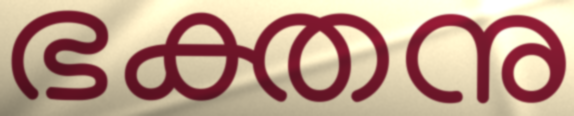
ഭക്തനു